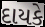
દાયકે